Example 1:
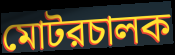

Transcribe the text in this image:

মোটরচালক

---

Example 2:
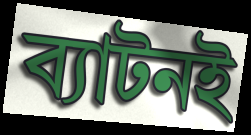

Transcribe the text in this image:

ব্যাটনই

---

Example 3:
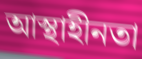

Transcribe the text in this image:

আস্থাহীনতা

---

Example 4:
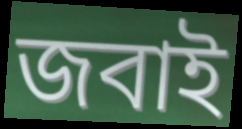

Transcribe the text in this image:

জবাই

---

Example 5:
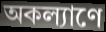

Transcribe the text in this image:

অকল্যাণে